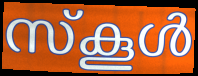
സ്‌കൂൾ